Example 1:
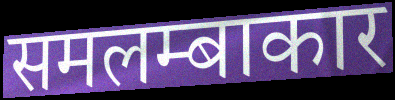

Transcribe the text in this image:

समलम्बाकार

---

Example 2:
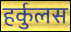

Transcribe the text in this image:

हर्कुलस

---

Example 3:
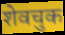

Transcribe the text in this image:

शेवचुक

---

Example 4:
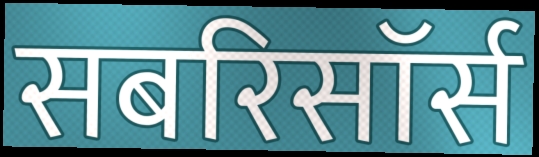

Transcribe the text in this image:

सबरिसॉर्स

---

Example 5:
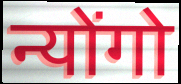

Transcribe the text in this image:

न्योंगो